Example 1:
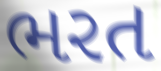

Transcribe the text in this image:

ભરત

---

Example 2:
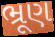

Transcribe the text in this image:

ભ્રૂણ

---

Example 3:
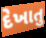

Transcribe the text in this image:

દેખાતુ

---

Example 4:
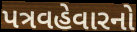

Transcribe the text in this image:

પત્રવહેવારનો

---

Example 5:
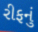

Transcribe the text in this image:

રીફનું